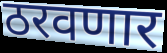
ठरवणार